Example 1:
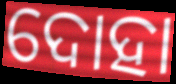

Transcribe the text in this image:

ଦୋହା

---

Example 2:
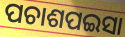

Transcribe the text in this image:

ପଚାଶପଇସା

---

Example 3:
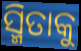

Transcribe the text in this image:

ସ୍ମିତାକୁ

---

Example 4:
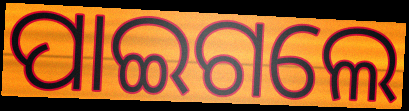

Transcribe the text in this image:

ପାଇଗଲେ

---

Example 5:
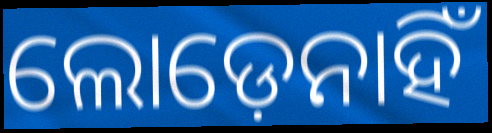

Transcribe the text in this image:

ଲୋଡ଼େନାହିଁ